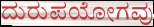
ದುರುಪಯೋಗವು